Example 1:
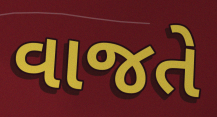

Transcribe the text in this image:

વાજતે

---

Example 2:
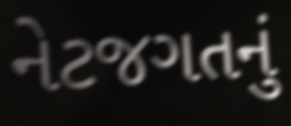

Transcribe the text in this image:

નેટજગતનું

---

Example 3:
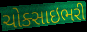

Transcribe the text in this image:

ચોક્સાઇભરી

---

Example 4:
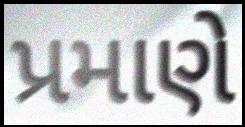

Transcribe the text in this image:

પ્રમાણે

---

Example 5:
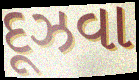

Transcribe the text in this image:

દૂઝવા